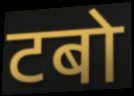
टबो